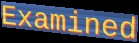
Examined